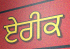
ਏਰੀਕ